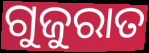
ଗୁଜୁରାତ